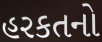
હરકતનો